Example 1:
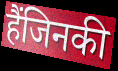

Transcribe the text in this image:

हैंजिनकी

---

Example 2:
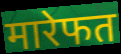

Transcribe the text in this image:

मारेफत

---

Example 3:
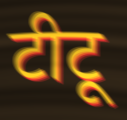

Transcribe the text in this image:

टीटू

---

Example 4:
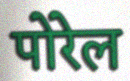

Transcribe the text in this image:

पोरेल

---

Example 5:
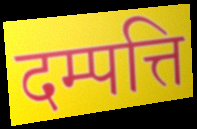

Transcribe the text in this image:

दम्पत्ति